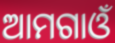
ଆମଗାଓଁ